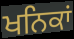
ਖਨਿਕਾਂ